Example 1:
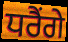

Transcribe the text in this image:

ਧਰੈਂਗੇ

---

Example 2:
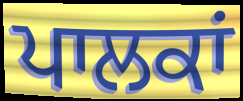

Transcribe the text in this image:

ਪਾਲਕਾਂ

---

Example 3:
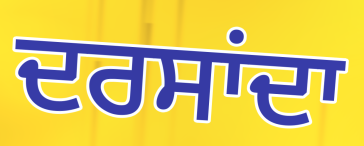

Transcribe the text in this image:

ਦਰਸਾਂਦਾ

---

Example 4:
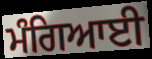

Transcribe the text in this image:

ਮੰਗਿਆਈ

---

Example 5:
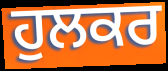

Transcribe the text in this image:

ਹੁਲਕਰ